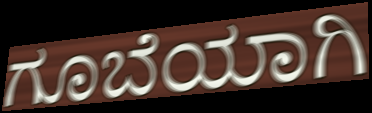
ಗೂಬೆಯಾಗಿ